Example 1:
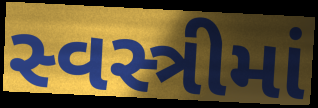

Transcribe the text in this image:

સ્વસ્ત્રીમાં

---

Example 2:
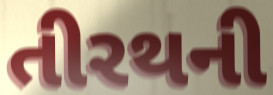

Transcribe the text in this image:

તીરથની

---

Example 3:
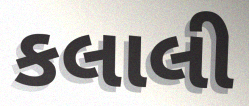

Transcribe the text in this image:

કલાલી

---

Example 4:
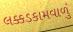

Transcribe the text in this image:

લક્કડકામવાળું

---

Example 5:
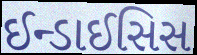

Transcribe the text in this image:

ઈન્ડાઈસિસ